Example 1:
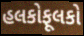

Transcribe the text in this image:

હલકોફૂલકો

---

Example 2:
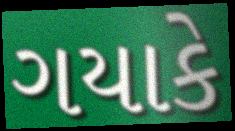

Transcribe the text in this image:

ગયાકે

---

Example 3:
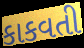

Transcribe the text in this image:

કાકવતી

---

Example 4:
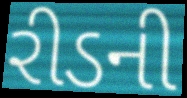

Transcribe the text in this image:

રીડની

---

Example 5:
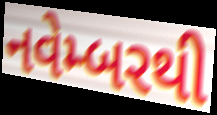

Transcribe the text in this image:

નવેમ્બરથી